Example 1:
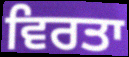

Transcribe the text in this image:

ਵਿਰਤਾ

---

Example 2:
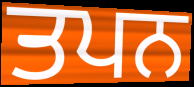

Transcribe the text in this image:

ਤਪਨ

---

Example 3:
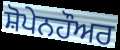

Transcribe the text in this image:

ਸ਼ੋਪੇਨਹੌਅਰ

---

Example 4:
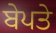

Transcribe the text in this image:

ਬੇਪਤੇ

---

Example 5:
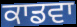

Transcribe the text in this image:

ਕਾਡਵਾ